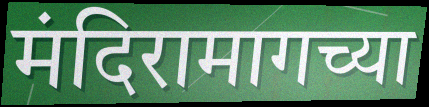
मंदिरामागच्या